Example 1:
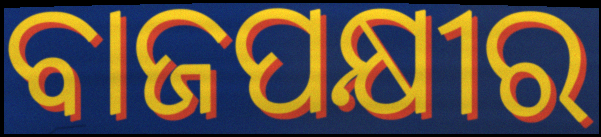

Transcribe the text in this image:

ବାଜପକ୍ଷୀର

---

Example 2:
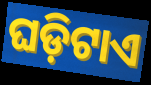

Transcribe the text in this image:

ଘଡ଼ିଟାଏ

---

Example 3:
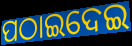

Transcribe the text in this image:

ପଠାଇଦେଇ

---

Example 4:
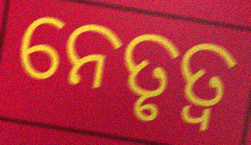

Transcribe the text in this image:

ନେତୃତ୍ଵ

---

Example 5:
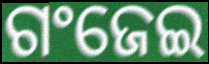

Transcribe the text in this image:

ଗଂଜେଇ